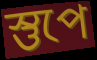
স্তুপে